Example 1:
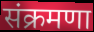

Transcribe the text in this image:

संक्रमणा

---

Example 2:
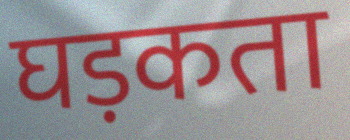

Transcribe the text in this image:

घड़कता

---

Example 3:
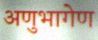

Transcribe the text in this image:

अणुभागेण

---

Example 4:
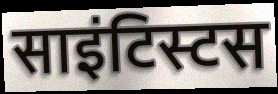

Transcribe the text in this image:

साइंटिस्टस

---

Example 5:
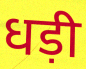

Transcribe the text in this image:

धड़ी